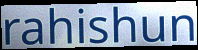
rahishun